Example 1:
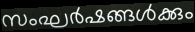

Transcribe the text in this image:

സംഘർഷങ്ങൾക്കും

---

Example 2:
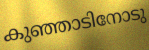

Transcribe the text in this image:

കുഞ്ഞാടിനോടു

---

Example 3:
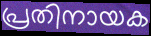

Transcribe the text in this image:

പ്രതിനായക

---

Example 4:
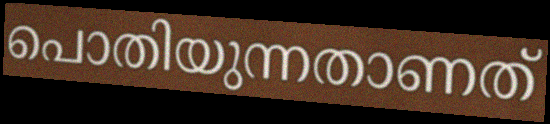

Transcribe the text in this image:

പൊതിയുന്നതാണത്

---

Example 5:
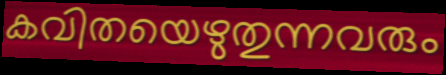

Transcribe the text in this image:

കവിതയെഴുതുന്നവരും